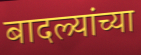
बादल्यांच्या